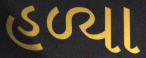
હળ્યા